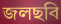
জলছবি